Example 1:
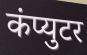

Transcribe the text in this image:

कंप्युटर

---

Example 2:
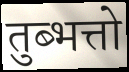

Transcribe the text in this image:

तुब्भत्तो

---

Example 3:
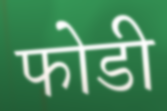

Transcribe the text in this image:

फोडी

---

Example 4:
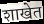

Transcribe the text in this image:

शाखेत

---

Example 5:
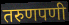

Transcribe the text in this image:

तरुणपणी